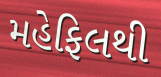
મહેફિલથી